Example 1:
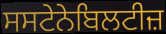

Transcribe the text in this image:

ਸਸਟੇਨੇਬਿਲਟੀਜ਼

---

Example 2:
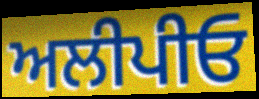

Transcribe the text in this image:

ਅਲੀਪੀਓ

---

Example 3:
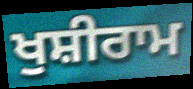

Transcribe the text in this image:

ਖੁਸ਼ੀਰਾਮ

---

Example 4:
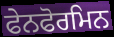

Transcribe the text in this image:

ਫੇਨਫੋਰਮਿਨ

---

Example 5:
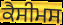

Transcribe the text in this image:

ਕੈਸੀਮਸ